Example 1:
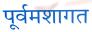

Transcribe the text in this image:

पूर्वमशागत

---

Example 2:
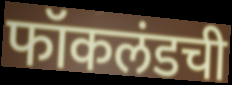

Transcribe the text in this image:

फॉकलंडची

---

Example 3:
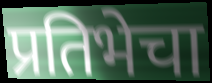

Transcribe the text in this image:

प्रतिभेचा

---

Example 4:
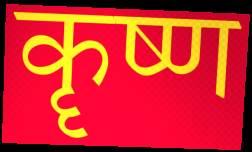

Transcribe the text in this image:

कॄष्ण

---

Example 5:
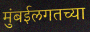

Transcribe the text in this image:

मुंबईलगतच्या